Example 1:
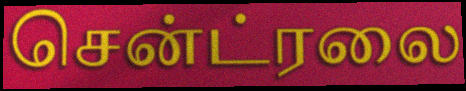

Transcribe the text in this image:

சென்ட்ரலை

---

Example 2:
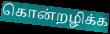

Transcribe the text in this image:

கொன்றழிக்க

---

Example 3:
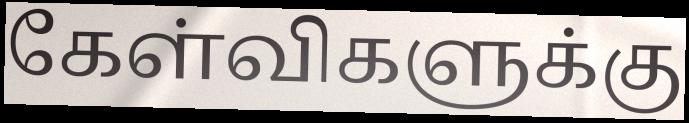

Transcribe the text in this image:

கேள்விகளுக்கு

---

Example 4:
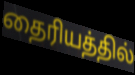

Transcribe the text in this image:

தைரியத்தில்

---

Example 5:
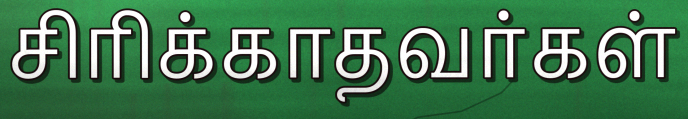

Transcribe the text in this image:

சிரிக்காதவர்கள்